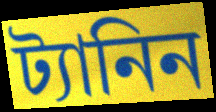
ট্যানিন